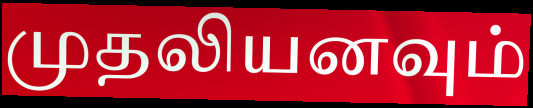
முதலியனவும்